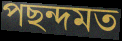
পছন্দমত